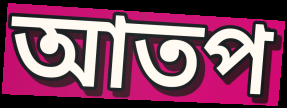
আতপ